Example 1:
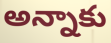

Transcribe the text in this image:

అన్నాకు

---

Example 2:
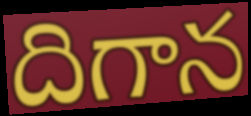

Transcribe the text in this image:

దిగాన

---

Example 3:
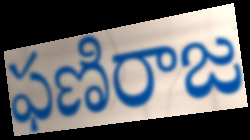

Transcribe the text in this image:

ఫణిరాజ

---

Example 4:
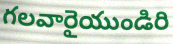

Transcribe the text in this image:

గలవారైయుండిరి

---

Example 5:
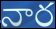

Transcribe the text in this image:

నార